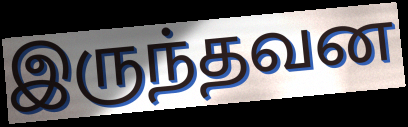
இருந்தவன